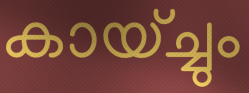
കായ്ച്ചും